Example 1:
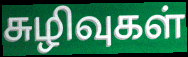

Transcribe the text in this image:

சுழிவுகள்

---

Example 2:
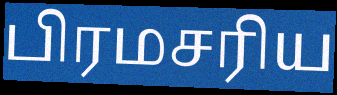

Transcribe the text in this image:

பிரமசரிய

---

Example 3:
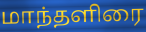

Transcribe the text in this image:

மாந்தளிரை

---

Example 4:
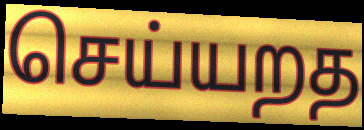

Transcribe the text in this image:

செய்யறத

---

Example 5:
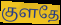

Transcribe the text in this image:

குளதே